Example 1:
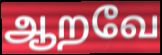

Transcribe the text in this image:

ஆறவே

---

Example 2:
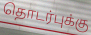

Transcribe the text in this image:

தொடர்புக்கு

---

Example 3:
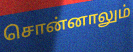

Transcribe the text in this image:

சொன்னாலும்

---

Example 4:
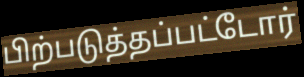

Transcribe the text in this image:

பிற்படுத்தப்பட்டோர்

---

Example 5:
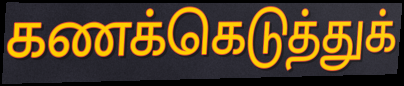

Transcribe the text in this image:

கணக்கெடுத்துக்